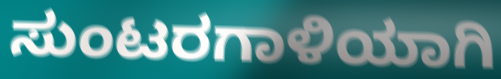
ಸುಂಟರಗಾಳಿಯಾಗಿ